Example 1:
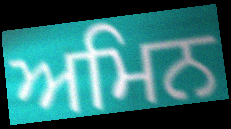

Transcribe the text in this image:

ਅਮਿਨ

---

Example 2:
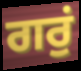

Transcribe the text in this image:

ਗਰੁਂ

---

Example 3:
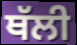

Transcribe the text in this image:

ਥੱਲੀ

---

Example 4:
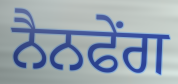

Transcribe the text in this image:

ਨੈਨਫੇਂਗ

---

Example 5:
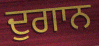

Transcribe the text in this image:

ਦੁਗਾਨ